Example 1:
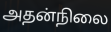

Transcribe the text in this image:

அதன்நிலை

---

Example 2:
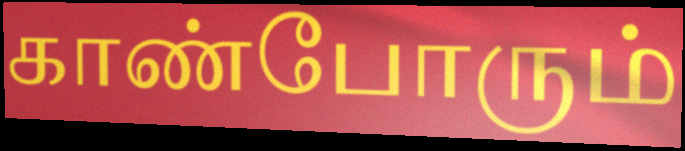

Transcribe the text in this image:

காண்போரும்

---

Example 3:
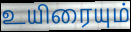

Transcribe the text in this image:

உயிரையும்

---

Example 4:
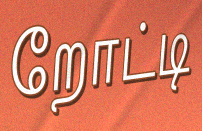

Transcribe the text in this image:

றோட்டி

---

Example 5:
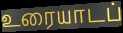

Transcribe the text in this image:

உரையாடப்